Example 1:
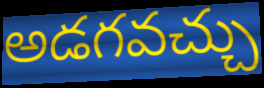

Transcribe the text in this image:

అడగవచ్చు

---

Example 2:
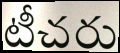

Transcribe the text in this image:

టీచరు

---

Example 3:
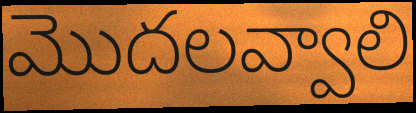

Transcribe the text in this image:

మొదలవ్వాలి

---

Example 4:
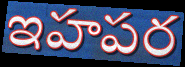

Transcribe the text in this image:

ఇహపర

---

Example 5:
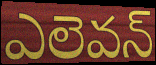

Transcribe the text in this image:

ఎలెవన్